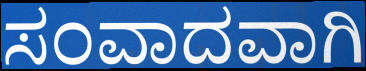
ಸಂವಾದವಾಗಿ